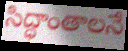
సిద్ధాంతాలనే